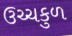
ઉચ્ચકુળ